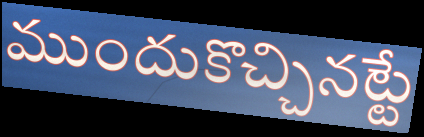
ముందుకొచ్చినట్టే